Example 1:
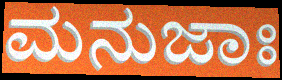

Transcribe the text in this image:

ಮನುಜಾಃ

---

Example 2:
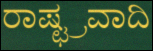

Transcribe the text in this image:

ರಾಷ್ಟ್ರವಾದಿ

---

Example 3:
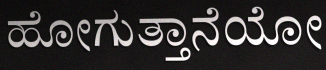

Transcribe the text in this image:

ಹೋಗುತ್ತಾನೆಯೋ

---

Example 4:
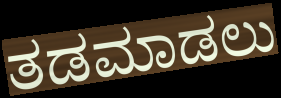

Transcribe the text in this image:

ತಡಮಾಡಲು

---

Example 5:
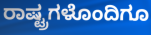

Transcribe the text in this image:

ರಾಷ್ಟ್ರಗಳೊಂದಿಗೂ